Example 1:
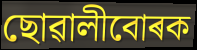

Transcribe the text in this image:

ছোৱালীবোৰক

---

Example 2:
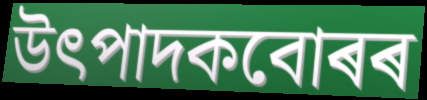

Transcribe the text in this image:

উৎপাদকবোৰৰ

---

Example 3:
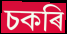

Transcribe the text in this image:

চকৰি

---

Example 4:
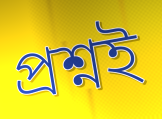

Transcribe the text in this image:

প্ৰশ্নই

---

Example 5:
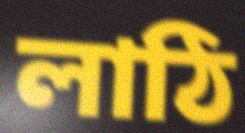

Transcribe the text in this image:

লাঠি